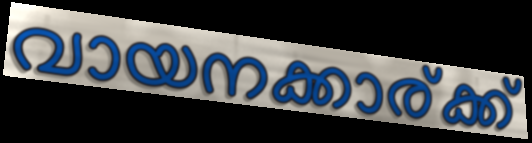
വായനക്കാര്ക്ക്